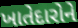
ખાતેદારોને